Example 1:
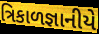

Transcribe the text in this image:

ત્રિકાળજ્ઞાનીયે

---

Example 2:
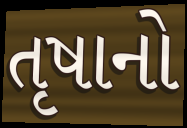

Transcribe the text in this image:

તૃષાનો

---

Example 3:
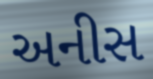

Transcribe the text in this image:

અનીસ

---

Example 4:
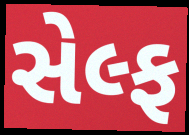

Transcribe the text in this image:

સેલ્ફ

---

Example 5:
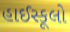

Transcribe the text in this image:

હાઈસ્કૂલો